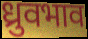
ध्रुवभाव